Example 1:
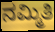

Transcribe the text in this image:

ನಮ್ಮಿತಿ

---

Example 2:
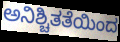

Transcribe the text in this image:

ಅನಿಶ್ಚಿತತೆಯಿಂದ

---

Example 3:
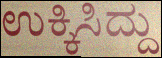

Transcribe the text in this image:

ಉಕ್ಕಿಸಿದ್ದು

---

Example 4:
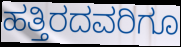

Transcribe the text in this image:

ಹತ್ತಿರದವರಿಗೂ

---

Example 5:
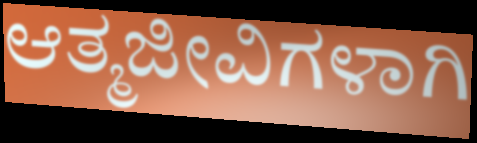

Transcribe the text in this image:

ಆತ್ಮಜೀವಿಗಳಾಗಿ